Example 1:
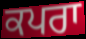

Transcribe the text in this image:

ਕਪਰਾ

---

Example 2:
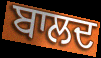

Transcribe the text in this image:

ਬਾਲਦ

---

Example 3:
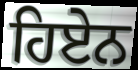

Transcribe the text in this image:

ਹਿਏਨ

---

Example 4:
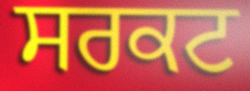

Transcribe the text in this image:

ਸਰਕਟ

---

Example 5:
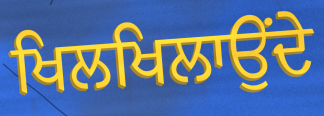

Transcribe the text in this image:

ਖਿਲਖਿਲਾਉਂਦੇ